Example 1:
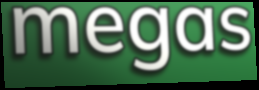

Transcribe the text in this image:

megas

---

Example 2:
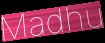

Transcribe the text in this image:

Madhu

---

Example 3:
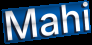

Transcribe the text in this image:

Mahi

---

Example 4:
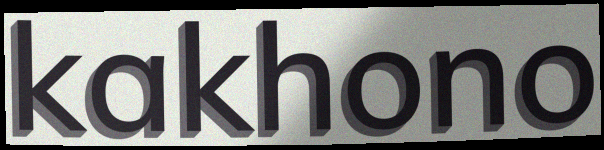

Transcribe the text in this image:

kakhono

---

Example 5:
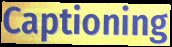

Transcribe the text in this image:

Captioning